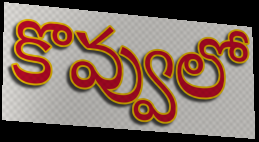
కొవ్వులో